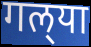
गल्या